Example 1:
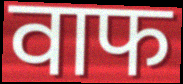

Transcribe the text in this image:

वाफ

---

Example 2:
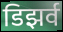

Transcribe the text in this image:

डिझर्व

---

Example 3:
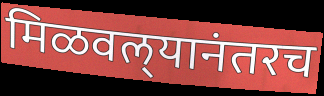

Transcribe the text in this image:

मिळवल्यानंतरच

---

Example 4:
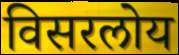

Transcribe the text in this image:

विसरलोय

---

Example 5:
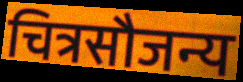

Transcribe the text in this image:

चित्रसौजन्य